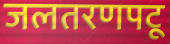
जलतरणपटू